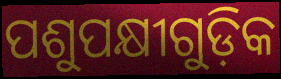
ପଶୁପକ୍ଷୀଗୁଡ଼ିକ